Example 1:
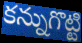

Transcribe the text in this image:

కన్నుగొట్టి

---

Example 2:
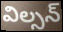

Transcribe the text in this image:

విల్సన్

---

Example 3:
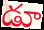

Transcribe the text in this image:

డూ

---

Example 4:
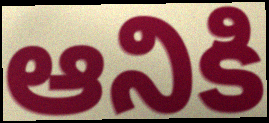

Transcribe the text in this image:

ఆనికి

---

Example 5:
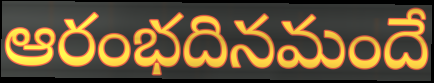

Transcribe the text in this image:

ఆరంభదినమందే